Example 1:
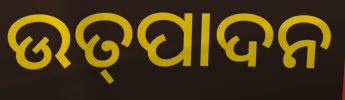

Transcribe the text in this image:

ଉତ୍‍ପାଦନ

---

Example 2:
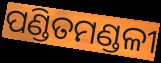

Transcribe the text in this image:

ପଣ୍ଡିତମଣ୍ଡଳୀ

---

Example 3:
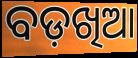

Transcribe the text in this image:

ବଡ଼ଖିଆ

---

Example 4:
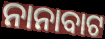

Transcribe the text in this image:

ନାନାବାଟ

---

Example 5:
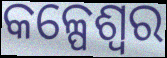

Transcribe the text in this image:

କଳ୍ପେଶ୍ୱର